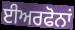
ਈਅਰਫੋਨਾਂ